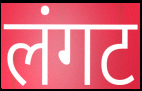
लंगट